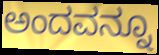
ಅಂದವನ್ನೂ